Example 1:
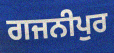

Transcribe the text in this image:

ਗਜਨੀਪੁਰ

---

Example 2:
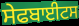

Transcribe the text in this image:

ਸੇਫਬਾਈਟਸ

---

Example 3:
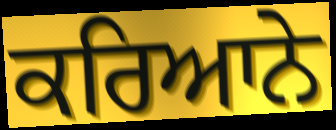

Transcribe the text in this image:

ਕਰਿਆਨੇ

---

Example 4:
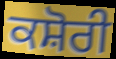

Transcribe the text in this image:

ਕਸ਼ੋਰੀ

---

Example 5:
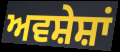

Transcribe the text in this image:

ਅਵਸ਼ੇਸ਼ਾਂ